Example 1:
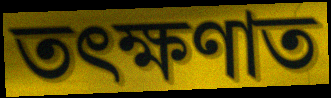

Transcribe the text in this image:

তৎক্ষণাত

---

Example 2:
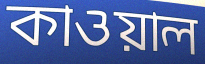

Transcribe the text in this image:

কাওয়াল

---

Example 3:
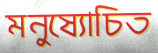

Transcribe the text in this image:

মনুষ্যোচিত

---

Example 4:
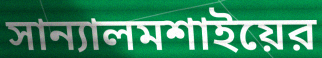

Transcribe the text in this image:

সান্যালমশাইয়ের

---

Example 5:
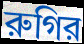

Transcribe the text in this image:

রুগির